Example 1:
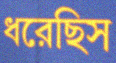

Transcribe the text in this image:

ধরেছিস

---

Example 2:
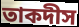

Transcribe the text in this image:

তাকদীস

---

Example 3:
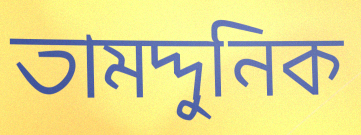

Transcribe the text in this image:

তামদ্দুনিক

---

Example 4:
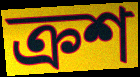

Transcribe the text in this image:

ক্রশ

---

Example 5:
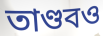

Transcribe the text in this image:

তাণ্ডবও